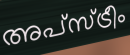
അപ്സ്ട്രീം